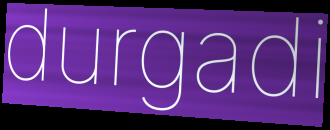
durgadi